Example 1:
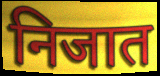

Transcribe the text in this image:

निजात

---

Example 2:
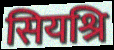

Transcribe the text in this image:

सियश्रि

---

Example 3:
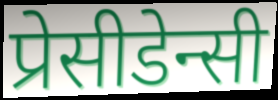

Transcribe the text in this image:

प्रेसीडेन्सी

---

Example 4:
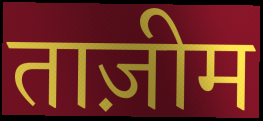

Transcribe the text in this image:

ताज़ीम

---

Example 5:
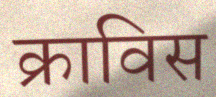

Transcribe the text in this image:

क्राविस